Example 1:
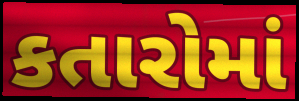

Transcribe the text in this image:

કતારોમાં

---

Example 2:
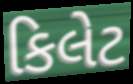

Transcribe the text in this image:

કિલેટ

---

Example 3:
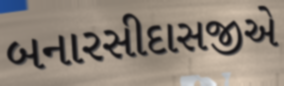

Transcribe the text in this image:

બનારસીદાસજીએ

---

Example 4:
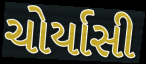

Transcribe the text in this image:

ચોર્યાસી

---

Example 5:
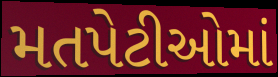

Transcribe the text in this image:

મતપેટીઓમાં